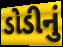
ડોડીનું